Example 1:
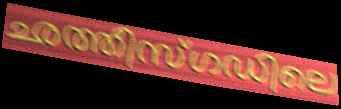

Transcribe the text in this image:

ഛത്തീസ്ഗഡിലെ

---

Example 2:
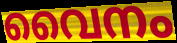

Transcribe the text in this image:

വൈനം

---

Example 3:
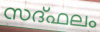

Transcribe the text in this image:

സദ്ഫലം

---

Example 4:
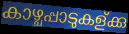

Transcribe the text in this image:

കാഴ്ചപ്പാടുകള്ക്കു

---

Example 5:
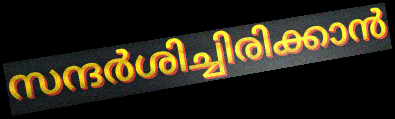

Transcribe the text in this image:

സന്ദർശിച്ചിരിക്കാൻ